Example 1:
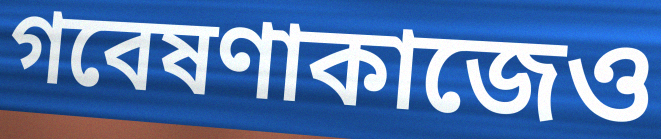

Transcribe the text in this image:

গবেষণাকাজেও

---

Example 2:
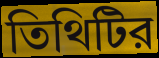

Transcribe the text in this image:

তিথিটির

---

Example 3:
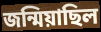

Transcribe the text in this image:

জন্মিয়াছিল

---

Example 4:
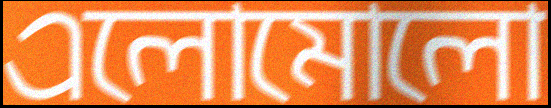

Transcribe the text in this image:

এলোমোলো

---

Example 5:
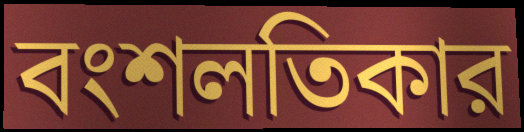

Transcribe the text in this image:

বংশলতিকার